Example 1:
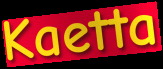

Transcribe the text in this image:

Kaetta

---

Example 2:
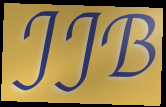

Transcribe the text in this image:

JJB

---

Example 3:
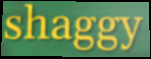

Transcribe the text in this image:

shaggy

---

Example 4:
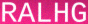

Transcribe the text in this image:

RALHG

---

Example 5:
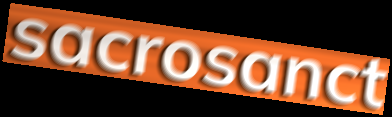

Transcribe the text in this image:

sacrosanct